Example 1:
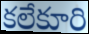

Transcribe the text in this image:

కలేకూరి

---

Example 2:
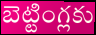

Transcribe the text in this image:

బెట్టింగ్లకు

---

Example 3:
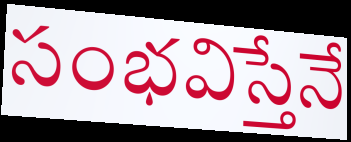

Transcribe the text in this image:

సంభవిస్తేనే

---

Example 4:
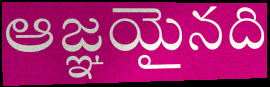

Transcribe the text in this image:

ఆజ్ఞయైనది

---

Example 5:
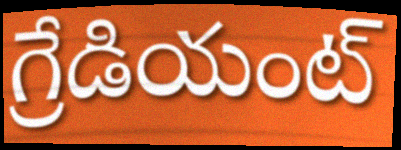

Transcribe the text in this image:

గ్రేడియంట్